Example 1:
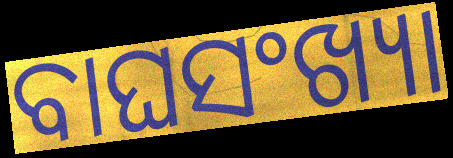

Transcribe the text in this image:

ବାଘସଂଖ୍ୟା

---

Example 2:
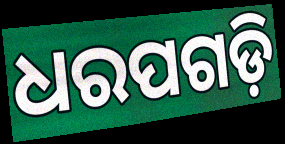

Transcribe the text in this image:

ଧରପଗଡ଼ି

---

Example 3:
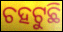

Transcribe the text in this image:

ଚହଟୁଛି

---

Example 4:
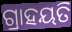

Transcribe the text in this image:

ଗ୍ରାହୟତି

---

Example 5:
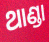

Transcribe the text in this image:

ଥାଣ୍ଡା